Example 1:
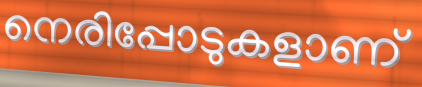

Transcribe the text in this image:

നെരിപ്പോടുകളാണ്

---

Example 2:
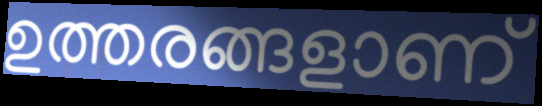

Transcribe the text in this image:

ഉത്തരങ്ങളാണ്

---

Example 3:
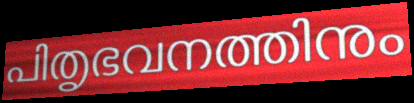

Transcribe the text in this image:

പിതൃഭവനത്തിനും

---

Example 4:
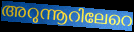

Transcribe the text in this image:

അറുന്നൂറിലേറെ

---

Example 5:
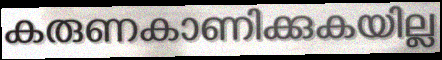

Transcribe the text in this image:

കരുണകാണിക്കുകയില്ല